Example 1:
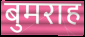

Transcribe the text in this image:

बुमराह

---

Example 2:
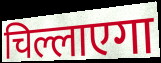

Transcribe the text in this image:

चिल्लाएगा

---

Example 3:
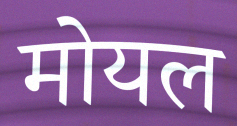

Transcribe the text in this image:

मोयल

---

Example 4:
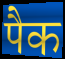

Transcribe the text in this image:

पैक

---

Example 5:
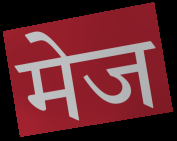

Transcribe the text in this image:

मेज